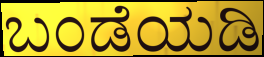
ಬಂಡೆಯಡಿ